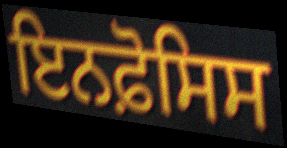
ਇਨਫ਼ੋਸਿਸ